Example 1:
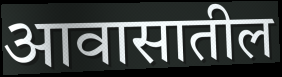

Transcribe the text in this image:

आवासातील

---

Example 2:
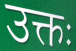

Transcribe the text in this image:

उक्तः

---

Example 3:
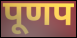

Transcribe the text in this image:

पूणप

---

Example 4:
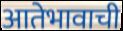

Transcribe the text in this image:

आतेभावाची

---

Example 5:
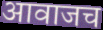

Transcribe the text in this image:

आवाजच